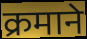
क्रमाने